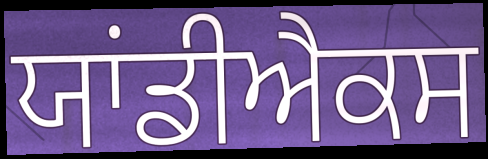
ਯਾਂਡੀਐਕਸ